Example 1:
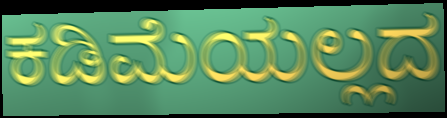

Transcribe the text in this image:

ಕಡಿಮೆಯಲ್ಲದ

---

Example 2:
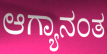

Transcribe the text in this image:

ಆಗ್ಯಾನಂತ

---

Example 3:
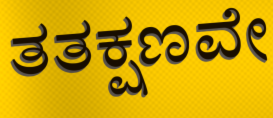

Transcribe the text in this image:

ತತಕ್ಷಣವೇ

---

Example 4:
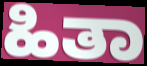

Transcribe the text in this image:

ಹಿತಾ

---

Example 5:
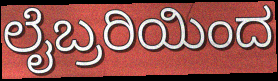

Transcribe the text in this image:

ಲೈಬ್ರರಿಯಿಂದ